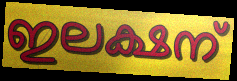
ഇലക്ഷന്